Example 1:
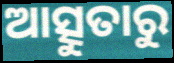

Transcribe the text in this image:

ଆତ୍ସୁତାରୁ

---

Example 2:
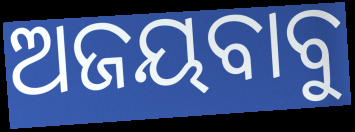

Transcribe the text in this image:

ଅଜୟବାବୁ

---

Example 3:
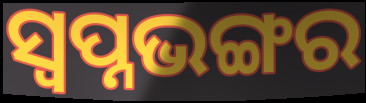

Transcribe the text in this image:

ସ୍ୱପ୍ନଭଙ୍ଗର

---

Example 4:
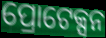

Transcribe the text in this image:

ପ୍ରୋଟେକ୍ସନ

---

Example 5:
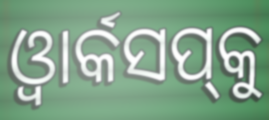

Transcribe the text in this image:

ଓ୍ୱାର୍କସପ୍‌କୁ